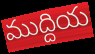
ముద్దియ